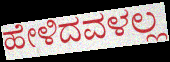
ಹೇಳಿದವಳಲ್ಲ